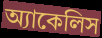
অ্যাকেলিস